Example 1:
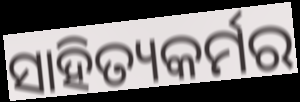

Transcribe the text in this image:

ସାହିତ୍ୟକର୍ମର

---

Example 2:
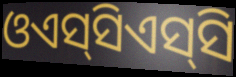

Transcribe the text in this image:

ଓଏସ୍‌ସିଏସ୍‌ସି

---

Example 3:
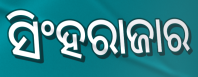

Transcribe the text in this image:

ସିଂହରାଜାର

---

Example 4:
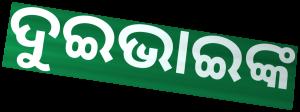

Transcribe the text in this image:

ଦୁଇଭାଇଙ୍କ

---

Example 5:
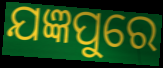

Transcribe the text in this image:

ଯଜ୍ଞପୁରେ